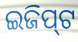
ଇଜିପ୍‌ଟ